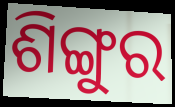
ଶିଙ୍ଗୁର